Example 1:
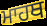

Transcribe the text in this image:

ਮਾਹਥ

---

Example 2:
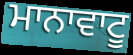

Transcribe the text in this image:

ਮਾਨਾਵਾਟੂ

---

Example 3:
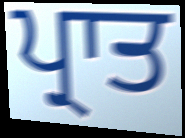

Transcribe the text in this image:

ਪ੍ਰਾਤ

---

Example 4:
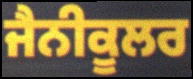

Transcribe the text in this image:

ਜੈਨੀਕੂਲਰ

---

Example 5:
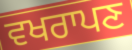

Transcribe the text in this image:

ਵਖਰਾਪਣ